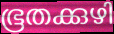
ഭൂതക്കുഴി